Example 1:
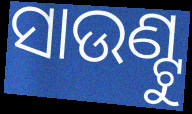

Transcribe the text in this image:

ସାଉଣ୍ଟୁ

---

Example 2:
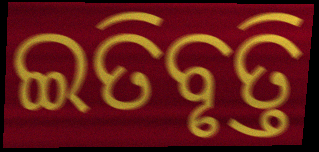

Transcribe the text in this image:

ଇତିବୃତ୍ତି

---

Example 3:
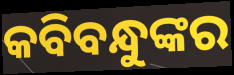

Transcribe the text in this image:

କବିବନ୍ଧୁଙ୍କର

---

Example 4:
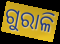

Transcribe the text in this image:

ଗୁରାଳି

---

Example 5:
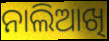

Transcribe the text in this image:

ନାଲିଆଖି